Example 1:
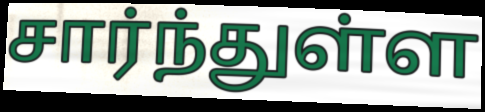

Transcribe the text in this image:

சார்ந்துள்ள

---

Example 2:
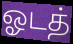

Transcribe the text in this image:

ஓடத்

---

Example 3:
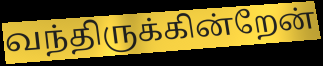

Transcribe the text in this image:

வந்திருக்கின்றேன்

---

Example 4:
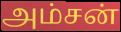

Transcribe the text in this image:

அம்சன்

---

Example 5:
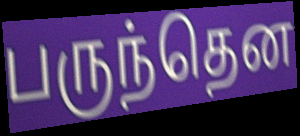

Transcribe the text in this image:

பருந்தென